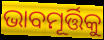
ଭାବମୂର୍ତ୍ତିକୁ